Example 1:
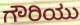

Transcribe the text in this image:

ಗೌರಿಯು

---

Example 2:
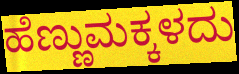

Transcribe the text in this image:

ಹೆಣ್ಣುಮಕ್ಕಳದು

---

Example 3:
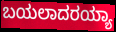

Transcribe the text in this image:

ಬಯಲಾದರಯ್ಯಾ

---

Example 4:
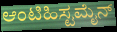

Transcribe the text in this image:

ಆಂಟಿಹಿಸ್ಟಮೈನ್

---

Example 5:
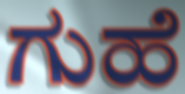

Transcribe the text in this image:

ಗುಹೆ